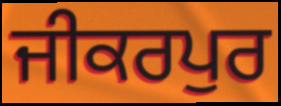
ਜੀਕਰਪੁਰ